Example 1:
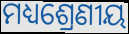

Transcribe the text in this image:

ମଧ୍ୟଶ୍ରେଣୀୟ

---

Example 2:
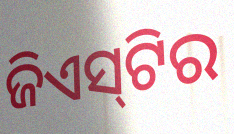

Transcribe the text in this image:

ଜିଏସ୍‌ଟିର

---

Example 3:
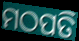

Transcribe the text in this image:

ମଠପତି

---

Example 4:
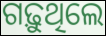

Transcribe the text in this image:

ଗଢ଼ୁଥିଲେ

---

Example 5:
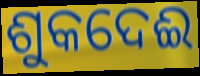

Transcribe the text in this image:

ଶୁକଦେଈ